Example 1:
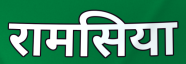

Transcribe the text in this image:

रामसिया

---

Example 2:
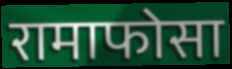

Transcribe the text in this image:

रामाफोसा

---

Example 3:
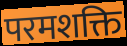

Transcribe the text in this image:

परमशक्ति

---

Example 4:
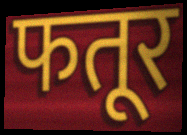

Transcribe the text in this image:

फतूर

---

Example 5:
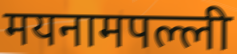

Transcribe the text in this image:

मयनामपल्ली